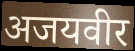
अजयवीर